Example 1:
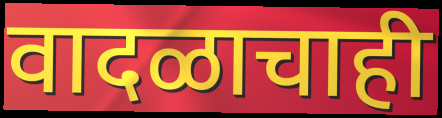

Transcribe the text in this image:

वादळाचाही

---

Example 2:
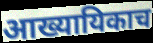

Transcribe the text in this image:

आख्यायिकाच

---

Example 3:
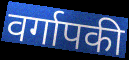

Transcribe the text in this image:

वर्गापकी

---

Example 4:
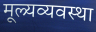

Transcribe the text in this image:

मूल्यव्यवस्था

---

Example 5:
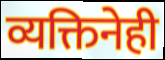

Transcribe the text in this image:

व्यक्तिनेही